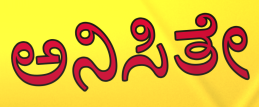
ಅನಿಸಿತೇ